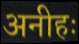
अनीहः